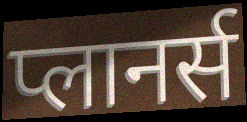
प्लानर्स